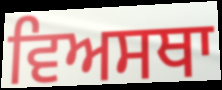
ਵਿਅਸਥਾ